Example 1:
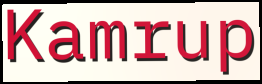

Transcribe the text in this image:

Kamrup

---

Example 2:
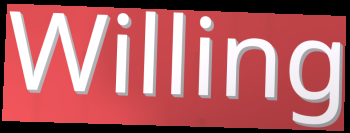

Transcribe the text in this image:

Willing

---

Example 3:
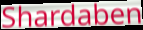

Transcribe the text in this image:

Shardaben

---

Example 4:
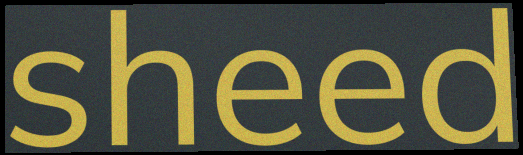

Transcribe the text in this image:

sheed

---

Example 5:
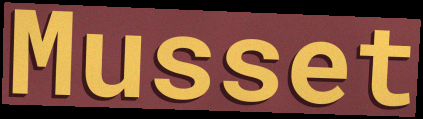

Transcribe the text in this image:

Musset